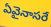
ఏవైనాసరే